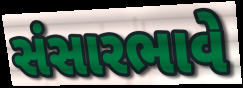
સંસારભાવે